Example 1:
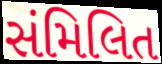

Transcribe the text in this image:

સંમિલિત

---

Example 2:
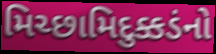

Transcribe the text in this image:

મિચ્છામિદુક્કડંનો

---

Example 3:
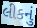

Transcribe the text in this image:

લીકનું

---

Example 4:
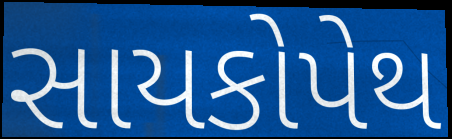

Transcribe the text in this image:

સાયકોપેથ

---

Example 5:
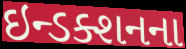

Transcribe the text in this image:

ઇન્ડક્શનના